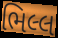
ભિલ્લ